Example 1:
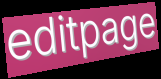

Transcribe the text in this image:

editpage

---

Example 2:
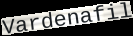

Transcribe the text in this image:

Vardenafil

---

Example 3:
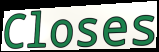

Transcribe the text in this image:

Closes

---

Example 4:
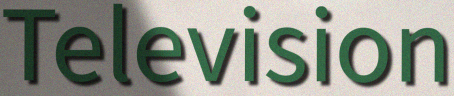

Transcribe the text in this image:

Television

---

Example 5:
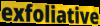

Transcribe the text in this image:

exfoliative